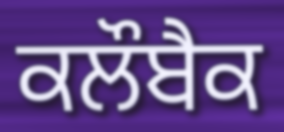
ਕਲੌਬੈਕ